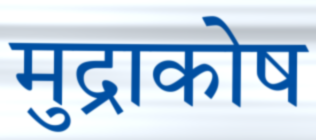
मुद्राकोष